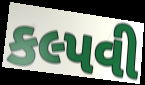
કલ્પવી